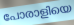
പോരാളിയെ